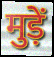
मुड़ें